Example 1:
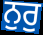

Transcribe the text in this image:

ਨੁਰੁ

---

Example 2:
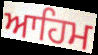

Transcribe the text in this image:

ਆਹਿਮ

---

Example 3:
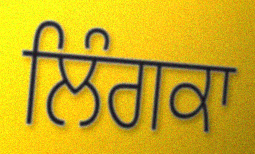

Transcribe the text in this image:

ਲਿੰਗਕਾ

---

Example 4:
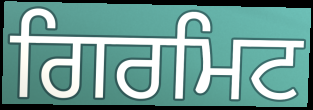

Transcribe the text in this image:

ਗਿਰਮਿਟ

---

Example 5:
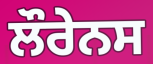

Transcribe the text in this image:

ਲੌਰੇਨਸ